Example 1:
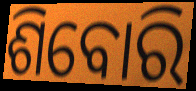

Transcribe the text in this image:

ଶିବୋରି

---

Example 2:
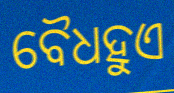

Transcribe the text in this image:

ବୈଧହୁଏ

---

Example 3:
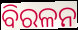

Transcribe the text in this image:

ବିରଳନ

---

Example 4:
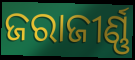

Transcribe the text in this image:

ଜରାଜୀର୍ଣ୍ଣ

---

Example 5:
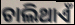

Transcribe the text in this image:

ଚାଲିଥାଏଁ